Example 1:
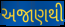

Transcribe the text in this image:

અજાણથી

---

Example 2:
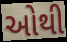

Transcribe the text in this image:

ઓથી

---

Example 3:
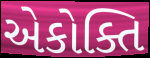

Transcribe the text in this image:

એકોક્તિ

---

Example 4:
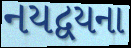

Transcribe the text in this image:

નયદ્વયના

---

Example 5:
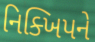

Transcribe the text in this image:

નિક્ખિપને